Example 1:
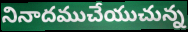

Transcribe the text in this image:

నినాదముచేయుచున్న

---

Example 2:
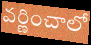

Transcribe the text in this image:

వర్ణించాలో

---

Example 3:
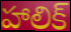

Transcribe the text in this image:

హాలిక్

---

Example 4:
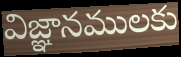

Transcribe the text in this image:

విజ్ఞానములకు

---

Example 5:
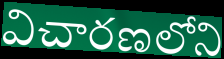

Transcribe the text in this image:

విచారణలోని